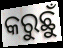
କରୁଛୁଁ